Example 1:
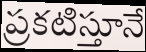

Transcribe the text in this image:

ప్రకటిస్తూనే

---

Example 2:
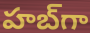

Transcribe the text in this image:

హబ్‌గా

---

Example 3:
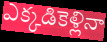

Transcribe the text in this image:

ఎక్కడికెళ్లినా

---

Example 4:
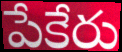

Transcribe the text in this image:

పేకేరు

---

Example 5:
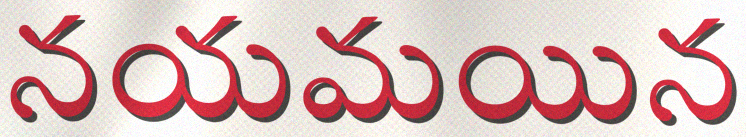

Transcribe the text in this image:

నయమయిన